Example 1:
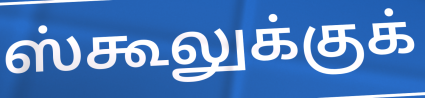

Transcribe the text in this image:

ஸ்கூலுக்குக்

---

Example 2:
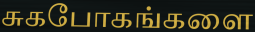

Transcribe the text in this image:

சுகபோகங்களை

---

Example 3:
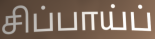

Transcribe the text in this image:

சிப்பாய்ப்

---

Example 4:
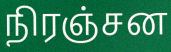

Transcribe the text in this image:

நிரஞ்சன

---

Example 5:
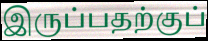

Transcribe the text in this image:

இருப்பதற்குப்